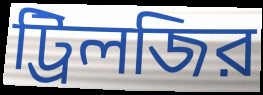
ট্রিলজির